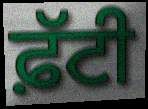
ਫ਼ੱਟੀ